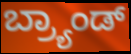
ಬ್ರ್ಯಾಂಡ್